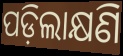
ପଡ଼ିଲାକ୍ଷଣି